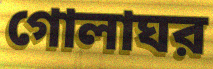
গোলাঘর